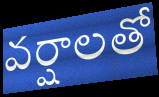
వర్షాలతో